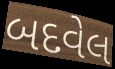
બદવેલ